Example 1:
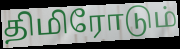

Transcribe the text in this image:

திமிரோடும்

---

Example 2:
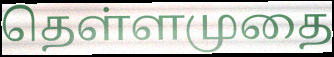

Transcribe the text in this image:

தெள்ளமுதை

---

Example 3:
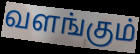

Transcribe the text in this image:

வளங்கும்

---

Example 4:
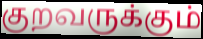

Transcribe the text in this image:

குறவருக்கும்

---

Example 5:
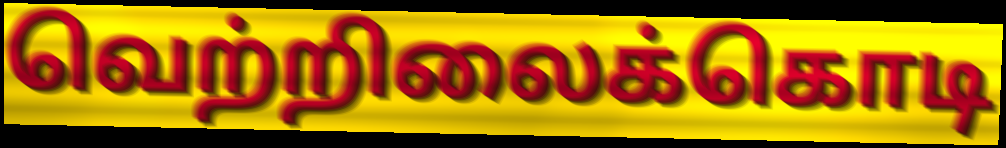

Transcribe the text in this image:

வெற்றிலைக்கொடி